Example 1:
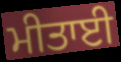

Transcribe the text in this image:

ਮੀਤਾਈ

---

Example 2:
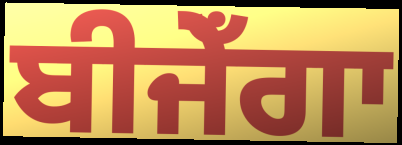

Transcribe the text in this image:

ਬੀਜੇਁਗਾ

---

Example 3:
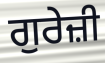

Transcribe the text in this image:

ਗੁਰੇਜ਼ੀ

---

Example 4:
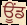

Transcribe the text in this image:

ਊਂਡ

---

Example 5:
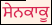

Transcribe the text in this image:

ਸੇਨਕਾਕੂ